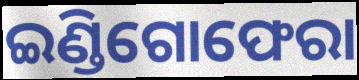
ଇଣ୍ଡିଗୋଫେରା